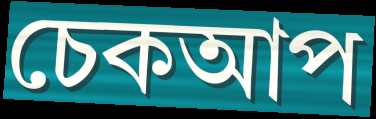
চেকআপ